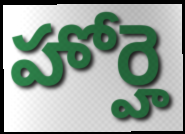
హోర్హె